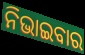
ନିଭାଇବାର